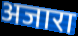
अजारा